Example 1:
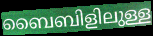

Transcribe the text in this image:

ബൈബിളിലുള്ള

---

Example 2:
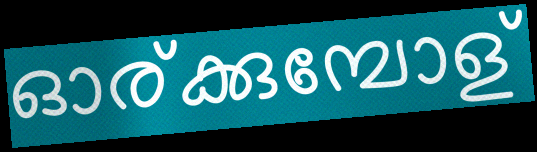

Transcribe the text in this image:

ഓര്ക്കുമ്പോള്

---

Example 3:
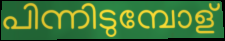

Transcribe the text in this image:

പിന്നിടുമ്പോള്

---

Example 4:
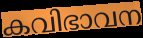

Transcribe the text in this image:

കവിഭാവന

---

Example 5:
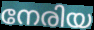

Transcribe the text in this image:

നേരിയ